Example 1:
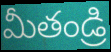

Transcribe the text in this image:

మీతండ్రి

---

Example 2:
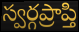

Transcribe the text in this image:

స్వర్గప్రాప్తి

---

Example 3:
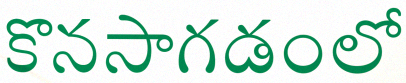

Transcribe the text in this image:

కొనసాగడంలో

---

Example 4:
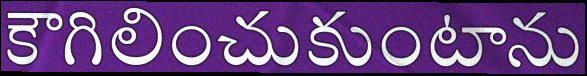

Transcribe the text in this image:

కౌగిలించుకుంటాను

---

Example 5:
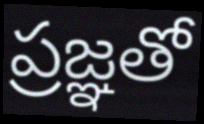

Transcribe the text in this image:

ప్రజ్ఞతో